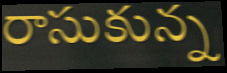
రాసుకున్న